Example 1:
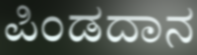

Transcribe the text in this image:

ಪಿಂಡದಾನ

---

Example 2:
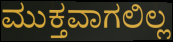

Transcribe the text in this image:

ಮುಕ್ತವಾಗಲಿಲ್ಲ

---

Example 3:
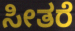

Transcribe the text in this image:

ಸೀತರೆ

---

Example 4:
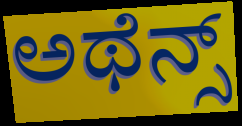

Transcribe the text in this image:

ಅಥೆನ್ಸ್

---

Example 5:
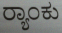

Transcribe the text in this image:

ರ್‍ಯಾಂಕು